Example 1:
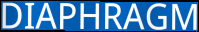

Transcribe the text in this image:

DIAPHRAGM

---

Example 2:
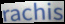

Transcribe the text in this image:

rachis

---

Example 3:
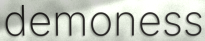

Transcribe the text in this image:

demoness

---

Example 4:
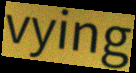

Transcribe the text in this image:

vying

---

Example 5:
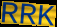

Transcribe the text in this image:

RRK